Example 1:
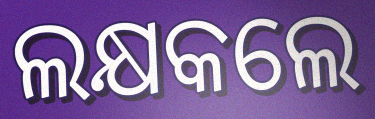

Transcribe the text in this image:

ଲକ୍ଷକଲେ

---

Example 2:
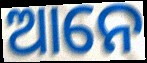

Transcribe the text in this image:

ଆନେ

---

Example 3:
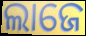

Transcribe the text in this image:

ଲାଜେ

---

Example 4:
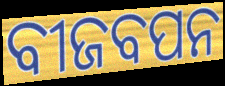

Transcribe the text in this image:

ବୀଜବପନ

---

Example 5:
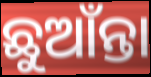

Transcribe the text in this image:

ଛୁଆଁନ୍ତା